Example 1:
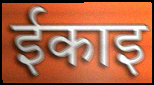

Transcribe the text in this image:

ईकाइ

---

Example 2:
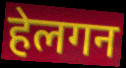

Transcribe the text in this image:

हेलगन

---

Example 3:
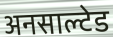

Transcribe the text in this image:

अनसाल्टेड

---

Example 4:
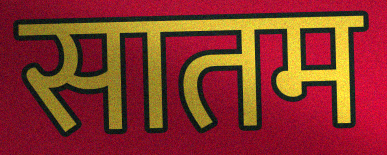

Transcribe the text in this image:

सातम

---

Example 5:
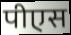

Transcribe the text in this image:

पीएस